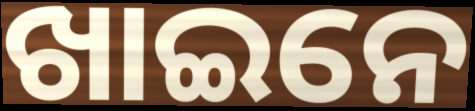
ଖାଇନେ